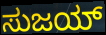
ಸುಜಯ್